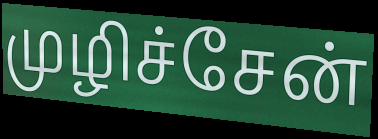
முழிச்சேன்